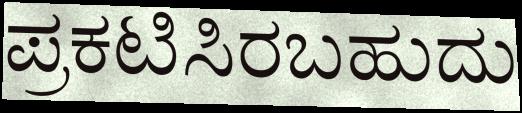
ಪ್ರಕಟಿಸಿರಬಹುದು